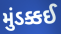
મુંડક્કઈ